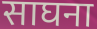
साघना